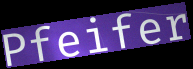
Pfeifer